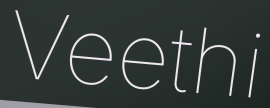
Veethi